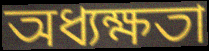
অধ্যক্ষতা